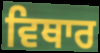
ਵਿਥਾਰ